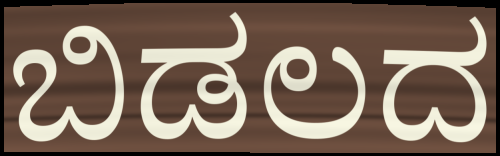
ಬಿಡಲದ